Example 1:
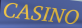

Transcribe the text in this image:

CASINO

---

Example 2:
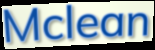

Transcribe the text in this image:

Mclean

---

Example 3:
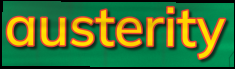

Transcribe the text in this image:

austerity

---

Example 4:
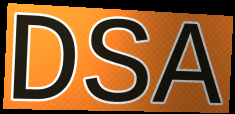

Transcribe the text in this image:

DSA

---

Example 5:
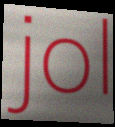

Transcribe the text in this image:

jol